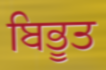
ਬਿਭੂਤ